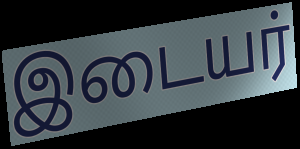
இடையர்